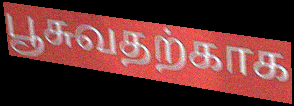
பூசுவதற்காக